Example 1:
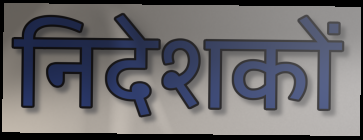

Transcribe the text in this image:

निदेशकों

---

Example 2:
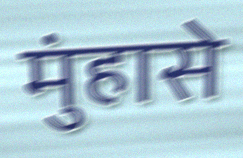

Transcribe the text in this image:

मुंहासे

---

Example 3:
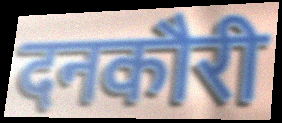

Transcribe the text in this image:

दनकौरी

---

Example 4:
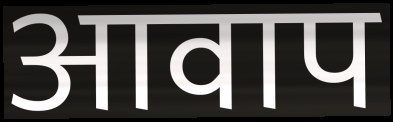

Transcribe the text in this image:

आवाप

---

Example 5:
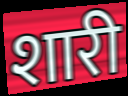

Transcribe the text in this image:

शारी